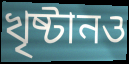
খৃষ্টানও